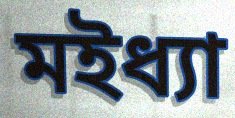
মইধ্যা